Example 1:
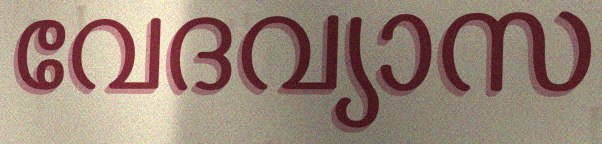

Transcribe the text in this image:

വേദവ്യാസ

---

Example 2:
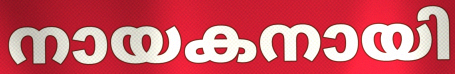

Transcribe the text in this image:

നായകനായി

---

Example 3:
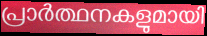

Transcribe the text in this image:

പ്രാർത്ഥനകളുമായി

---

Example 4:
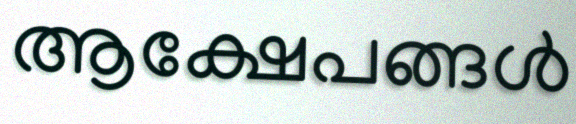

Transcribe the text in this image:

ആക്ഷേപങ്ങൾ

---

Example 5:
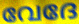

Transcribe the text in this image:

വേദേ